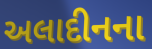
અલાદીનના